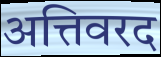
अत्तिवरद